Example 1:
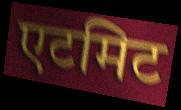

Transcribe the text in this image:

एटमिट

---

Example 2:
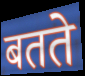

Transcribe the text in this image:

बतते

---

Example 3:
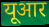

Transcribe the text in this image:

यूआर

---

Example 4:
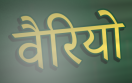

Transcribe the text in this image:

वैरियो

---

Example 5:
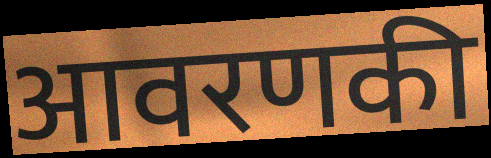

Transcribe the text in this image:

आवरणकी